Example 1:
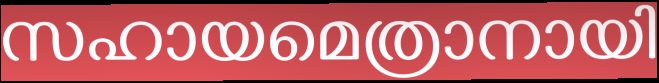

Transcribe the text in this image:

സഹായമെത്രാനായി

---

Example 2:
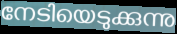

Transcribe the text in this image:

നേടിയെടുക്കുന്നു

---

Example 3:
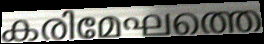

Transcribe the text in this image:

കരിമേഘത്തെ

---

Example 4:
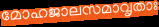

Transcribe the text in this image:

മോഹജാലസമാവൃതാഃ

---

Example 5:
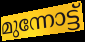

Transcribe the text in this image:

മുന്നോട്ട്